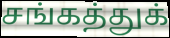
சங்கத்துக்